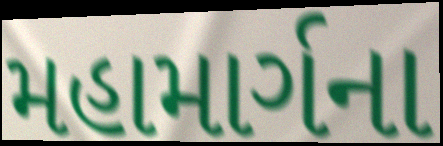
મહામાર્ગના